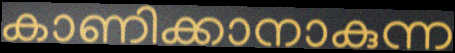
കാണിക്കാനാകുന്ന